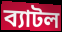
ব্যাটল